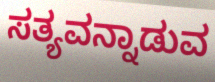
ಸತ್ಯವನ್ನಾಡುವ